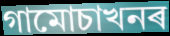
গামোচাখনৰ